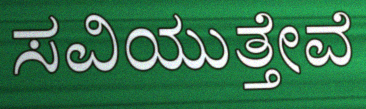
ಸವಿಯುತ್ತೇವೆ